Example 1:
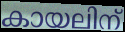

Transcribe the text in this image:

കായലിന്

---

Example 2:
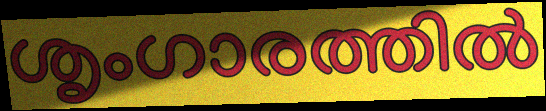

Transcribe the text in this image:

ശൃംഗാരത്തിൽ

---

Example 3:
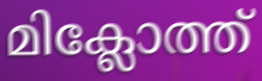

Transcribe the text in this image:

മിക്ലോത്ത്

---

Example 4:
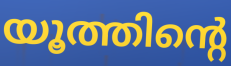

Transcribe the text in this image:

യൂത്തിന്റെ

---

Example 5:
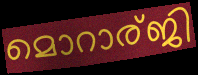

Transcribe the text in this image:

മൊറാര്ജി